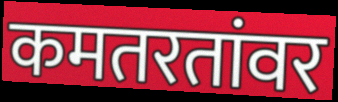
कमतरतांवर